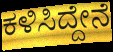
ಕಳಿಸಿದ್ದೇನೆ